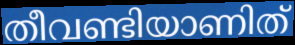
തീവണ്ടിയാണിത്